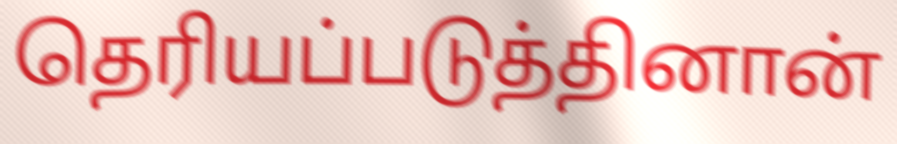
தெரியப்படுத்தினான்